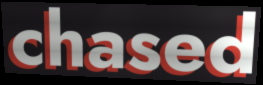
chased